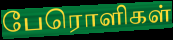
பேரொளிகள்